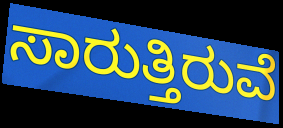
ಸಾರುತ್ತಿರುವೆ